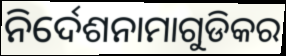
ନିର୍ଦେଶନାମାଗୁଡିକର